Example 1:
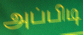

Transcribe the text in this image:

அப்பிடி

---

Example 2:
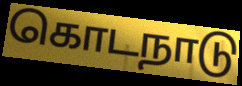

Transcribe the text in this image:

கொடநாடு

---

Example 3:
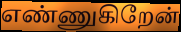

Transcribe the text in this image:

எண்ணுகிறேன்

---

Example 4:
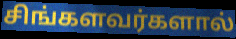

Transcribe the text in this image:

சிங்களவர்களால்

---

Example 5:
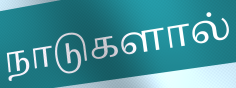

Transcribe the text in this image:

நாடுகளால்